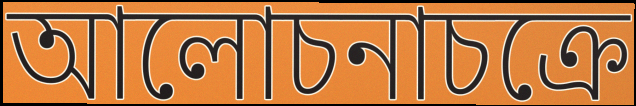
আলোচনাচক্রে